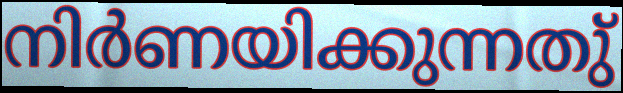
നിർണയിക്കുന്നതു്